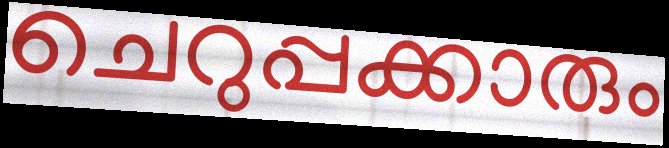
ചെറുപ്പക്കാരും